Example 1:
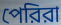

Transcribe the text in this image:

পেরিরা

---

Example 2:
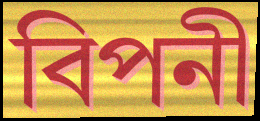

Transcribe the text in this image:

বিপনী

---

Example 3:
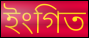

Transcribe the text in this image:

ইংগিত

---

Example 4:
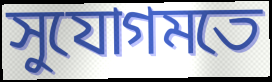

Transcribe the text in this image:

সুযোগমতে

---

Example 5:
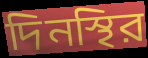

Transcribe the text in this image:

দিনস্থির